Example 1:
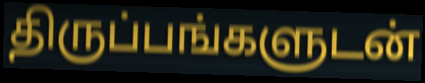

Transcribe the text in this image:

திருப்பங்களுடன்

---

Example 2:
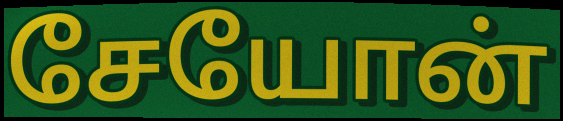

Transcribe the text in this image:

சேயோன்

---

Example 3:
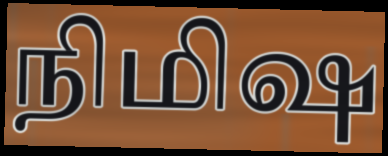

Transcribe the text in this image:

நிமிஷ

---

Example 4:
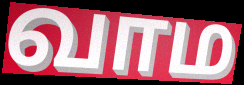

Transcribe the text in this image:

வாம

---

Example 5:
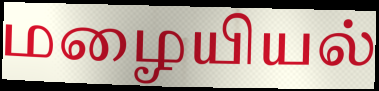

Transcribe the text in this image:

மழையியல்